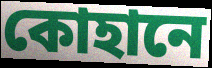
কোহানে